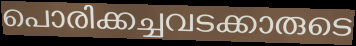
പൊരിക്കച്ചവടക്കാരുടെ